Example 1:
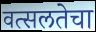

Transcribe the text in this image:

वत्सलतेचा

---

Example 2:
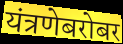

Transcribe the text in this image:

यंत्रणेबरोबर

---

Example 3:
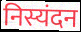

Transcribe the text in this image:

निस्यंदन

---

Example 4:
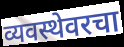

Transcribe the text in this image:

व्यवस्थेवरचा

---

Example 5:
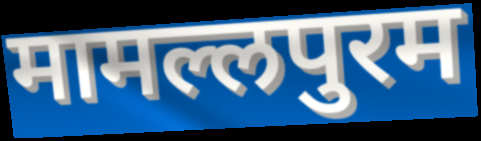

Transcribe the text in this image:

मामल्लपुरम